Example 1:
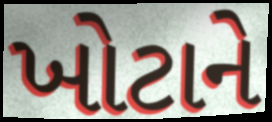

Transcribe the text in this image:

ખોટાને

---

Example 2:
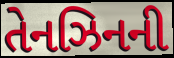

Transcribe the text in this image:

તેનઝિનની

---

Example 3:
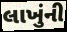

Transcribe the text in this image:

લાખુંની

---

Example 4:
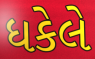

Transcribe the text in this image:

ધકેલે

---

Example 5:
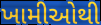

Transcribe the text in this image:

ખામીઓથી